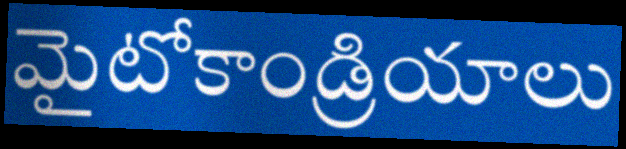
మైటోకాండ్రియాలు